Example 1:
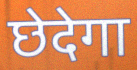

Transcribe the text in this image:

छेदेगा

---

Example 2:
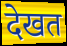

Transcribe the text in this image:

देखत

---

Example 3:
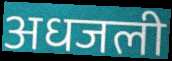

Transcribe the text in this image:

अधजली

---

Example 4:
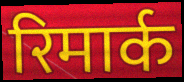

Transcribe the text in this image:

रिमार्क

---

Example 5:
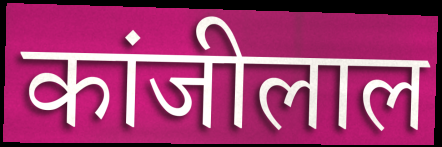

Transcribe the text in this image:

कांजीलाल